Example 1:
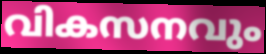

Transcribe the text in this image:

വികസനവും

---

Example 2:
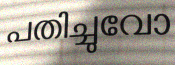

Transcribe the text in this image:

പതിച്ചുവോ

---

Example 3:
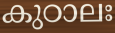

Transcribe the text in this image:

കുഠാലഃ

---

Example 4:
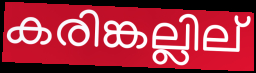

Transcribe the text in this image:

കരിങ്കല്ലില്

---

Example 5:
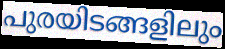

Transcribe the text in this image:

പുരയിടങ്ങളിലും